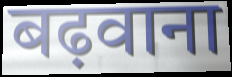
बढ़वाना